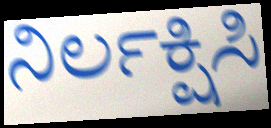
ನಿರ್ಲಕ್ಷಿಸಿ